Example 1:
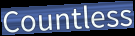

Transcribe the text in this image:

Countless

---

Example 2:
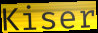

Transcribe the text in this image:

Kiser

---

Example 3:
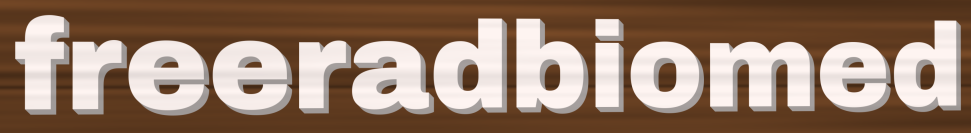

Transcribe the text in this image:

freeradbiomed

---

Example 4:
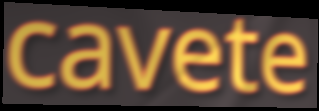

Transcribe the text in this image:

cavete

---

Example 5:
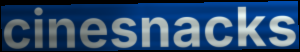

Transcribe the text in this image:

cinesnacks